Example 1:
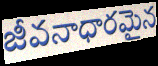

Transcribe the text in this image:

జీవనాధారమైన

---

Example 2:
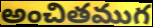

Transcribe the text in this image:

అంచితముగ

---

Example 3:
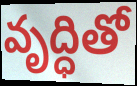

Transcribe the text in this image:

వృద్ధితో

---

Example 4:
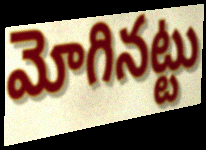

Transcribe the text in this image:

మోగినట్టు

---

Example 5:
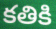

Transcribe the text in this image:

కతికి